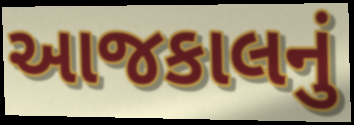
આજકાલનું